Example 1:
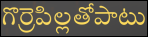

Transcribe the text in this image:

గొర్రెపిల్లతోపాటు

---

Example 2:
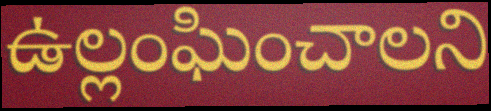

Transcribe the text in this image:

ఉల్లంఘించాలని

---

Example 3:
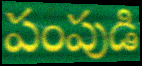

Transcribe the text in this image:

పంపుడి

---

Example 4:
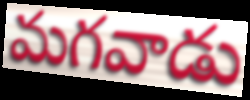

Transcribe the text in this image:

మగవాడు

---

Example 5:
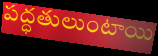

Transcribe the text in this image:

పద్ధతులుంటాయి